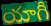
యాగీ